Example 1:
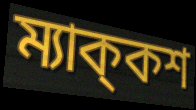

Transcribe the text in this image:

ম্যাক্‌কশ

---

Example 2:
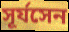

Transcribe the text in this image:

সূর্যসেন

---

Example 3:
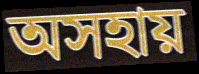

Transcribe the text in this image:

অসহায়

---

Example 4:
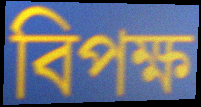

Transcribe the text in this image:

বিপক্ষ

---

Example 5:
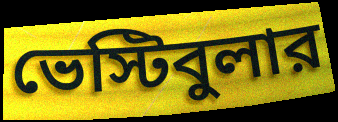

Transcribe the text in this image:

ভেস্টিবুলার